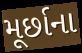
મૂર્છાના